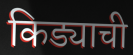
किड्याची